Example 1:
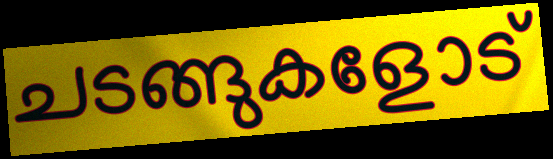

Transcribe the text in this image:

ചടങ്ങുകളോട്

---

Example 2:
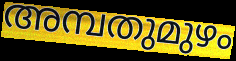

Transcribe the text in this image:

അമ്പതുമുഴം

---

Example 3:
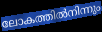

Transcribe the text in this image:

ലോകത്തിൽനിന്നും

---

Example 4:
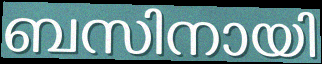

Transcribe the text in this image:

ബസിനായി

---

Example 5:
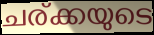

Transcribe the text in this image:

ചര്ക്കയുടെ